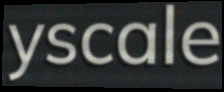
yscale